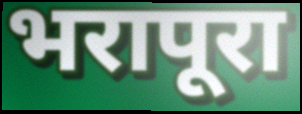
भरापूरा